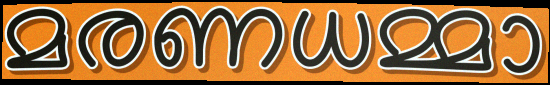
മരണധമ്മാ